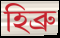
হিব্ৰু